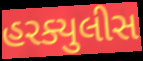
હરક્યુલીસ